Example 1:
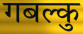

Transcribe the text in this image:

गबल्कु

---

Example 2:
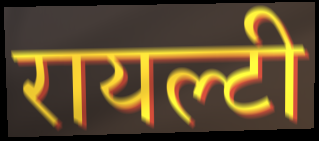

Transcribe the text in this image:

रायल्टी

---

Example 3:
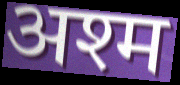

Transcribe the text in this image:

अश्म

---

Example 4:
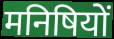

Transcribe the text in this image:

मनिषियों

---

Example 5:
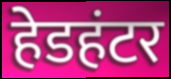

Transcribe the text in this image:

हेडहंटर